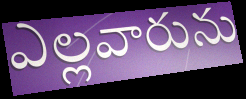
ఎల్లవారును